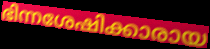
ഭിന്നശേഷിക്കാരായ